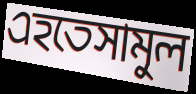
এহতেসামুল